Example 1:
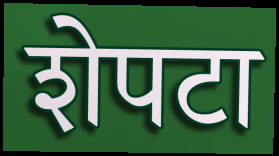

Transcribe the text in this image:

शेपटा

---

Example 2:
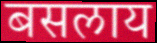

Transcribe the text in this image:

बसलाय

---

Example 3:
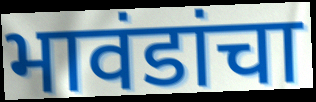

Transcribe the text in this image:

भावंडांचा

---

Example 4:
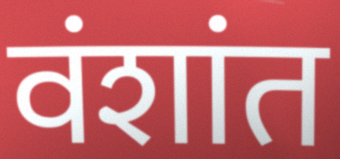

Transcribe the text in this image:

वंशांत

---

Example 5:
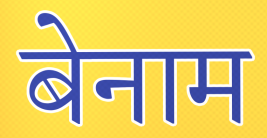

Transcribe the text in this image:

बेनाम